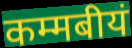
कम्मबीयं